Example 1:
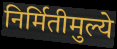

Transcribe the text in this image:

निर्मितीमुल्ये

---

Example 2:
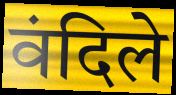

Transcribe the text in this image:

वंदिले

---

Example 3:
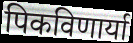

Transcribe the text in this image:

पिकविणार्या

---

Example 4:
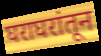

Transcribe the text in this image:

घराघरांतून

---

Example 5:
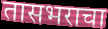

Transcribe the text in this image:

तासभराचा